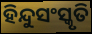
ହିନ୍ଦୁସଂସ୍କୃତି